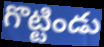
గొట్టిండు